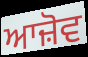
ਆਜ਼ੋਵ